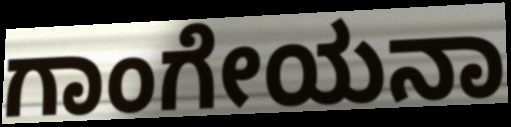
ಗಾಂಗೇಯನಾ